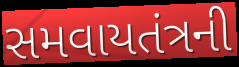
સમવાયતંત્રની